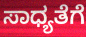
ಸಾಧ್ಯತೆಗೆ